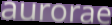
aurorae